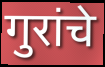
गुरांचे